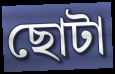
ছোটা